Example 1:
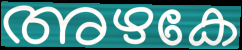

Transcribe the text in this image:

അഴകേ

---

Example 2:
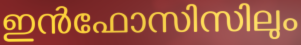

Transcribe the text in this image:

ഇൻഫോസിസിലും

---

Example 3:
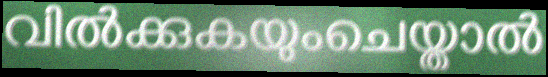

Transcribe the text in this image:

വിൽക്കുകയുംചെയ്താൽ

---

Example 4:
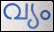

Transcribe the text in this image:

വ്യം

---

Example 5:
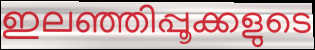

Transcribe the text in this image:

ഇലഞ്ഞിപ്പൂക്കളുടെ